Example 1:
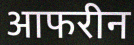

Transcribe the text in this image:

आफरीन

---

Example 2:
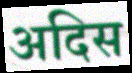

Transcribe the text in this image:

अदिस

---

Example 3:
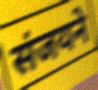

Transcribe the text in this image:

संजयने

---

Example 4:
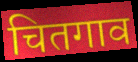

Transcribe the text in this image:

चितगाव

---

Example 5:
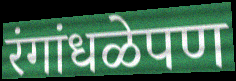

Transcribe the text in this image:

रंगांधळेपण